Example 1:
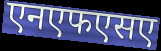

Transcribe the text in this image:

एनएफएसए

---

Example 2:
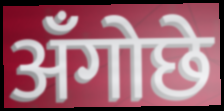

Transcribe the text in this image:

अँगोछे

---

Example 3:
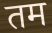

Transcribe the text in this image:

तम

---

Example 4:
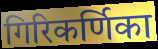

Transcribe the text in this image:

गिरिकर्णिका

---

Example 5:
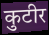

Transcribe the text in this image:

कुटीर